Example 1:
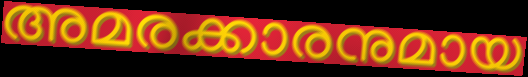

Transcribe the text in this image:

അമരക്കാരനുമായ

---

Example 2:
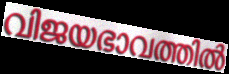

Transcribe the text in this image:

വിജയഭാവത്തിൽ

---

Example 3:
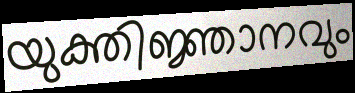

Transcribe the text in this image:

യുക്തിജ്ഞാനവും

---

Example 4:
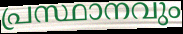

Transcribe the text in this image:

പ്രസ്ഥാനവും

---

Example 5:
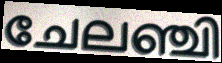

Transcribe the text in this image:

ചേലഞ്ചി